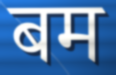
बम